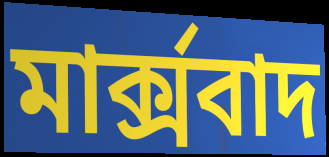
মার্ক্সবাদ